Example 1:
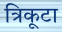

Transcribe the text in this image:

त्रिकूटा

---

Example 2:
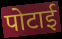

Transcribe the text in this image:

पोटाई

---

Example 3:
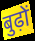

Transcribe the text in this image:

बुढ़ों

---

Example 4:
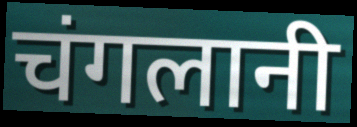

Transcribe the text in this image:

चंगलानी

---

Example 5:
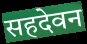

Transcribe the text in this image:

सहदेवन